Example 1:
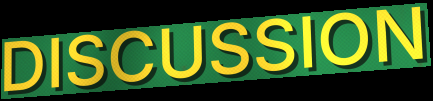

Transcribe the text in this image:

DISCUSSION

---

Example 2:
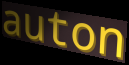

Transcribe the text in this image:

auton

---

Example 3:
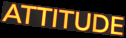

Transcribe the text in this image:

ATTITUDE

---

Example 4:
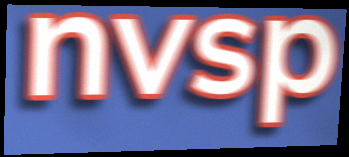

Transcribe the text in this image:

nvsp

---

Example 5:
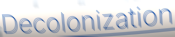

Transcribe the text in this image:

Decolonization